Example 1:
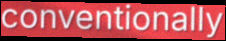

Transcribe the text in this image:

conventionally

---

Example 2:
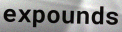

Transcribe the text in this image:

expounds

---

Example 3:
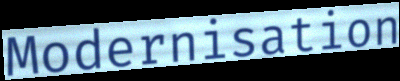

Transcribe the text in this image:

Modernisation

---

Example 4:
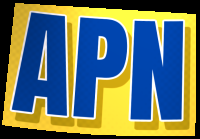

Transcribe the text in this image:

APN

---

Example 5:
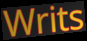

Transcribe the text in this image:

Writs